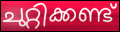
ചുറ്റിക്കണ്ട്